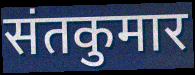
संतकुमार